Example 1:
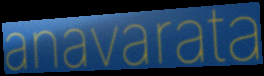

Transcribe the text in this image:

anavarata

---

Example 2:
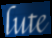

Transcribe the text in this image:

lute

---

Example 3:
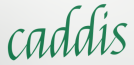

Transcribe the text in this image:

caddis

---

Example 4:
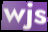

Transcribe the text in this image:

wjs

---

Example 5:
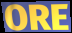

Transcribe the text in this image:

ORE